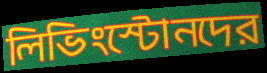
লিভিংস্টোনদের